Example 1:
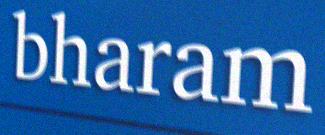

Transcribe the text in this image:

bharam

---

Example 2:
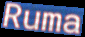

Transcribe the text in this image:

Ruma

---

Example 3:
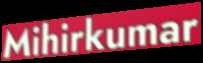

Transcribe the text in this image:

Mihirkumar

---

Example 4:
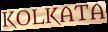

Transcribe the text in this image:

KOLKATA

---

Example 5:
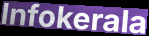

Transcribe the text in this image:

Infokerala